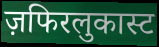
ज़फिरलुकास्ट